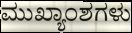
ಮುಖ್ಯಾಂಶಗಳು